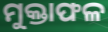
ମୁକ୍ତାଫଳ